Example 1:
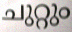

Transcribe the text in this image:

ചുറ്റും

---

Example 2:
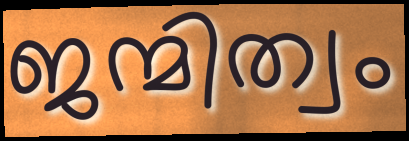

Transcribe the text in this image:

ജന്മിത്വം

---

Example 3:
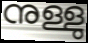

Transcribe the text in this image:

നുള്ളു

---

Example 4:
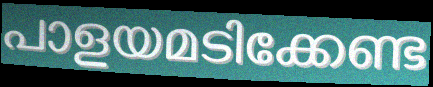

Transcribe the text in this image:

പാളയമടിക്കേണ്ട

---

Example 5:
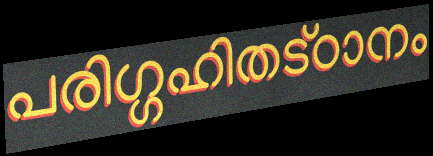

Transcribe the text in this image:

പരിഗ്ഗഹിതട്ഠാനം